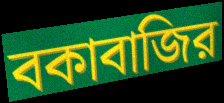
বকাবাজির